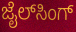
ಜೈಲ್‌ಸಿಂಗ್